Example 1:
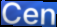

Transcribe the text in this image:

Cen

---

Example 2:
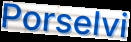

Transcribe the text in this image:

Porselvi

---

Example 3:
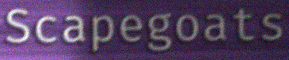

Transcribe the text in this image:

Scapegoats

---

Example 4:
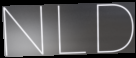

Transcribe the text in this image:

NLD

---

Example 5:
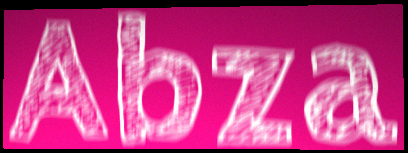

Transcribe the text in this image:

Abza